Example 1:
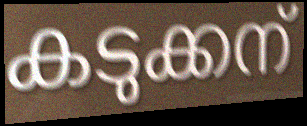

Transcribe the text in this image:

കടുക്കന്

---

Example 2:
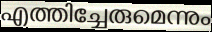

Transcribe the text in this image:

എത്തിച്ചേരുമെന്നും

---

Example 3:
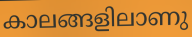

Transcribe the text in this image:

കാലങ്ങളിലാണു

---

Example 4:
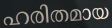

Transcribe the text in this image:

ഹരിതമായ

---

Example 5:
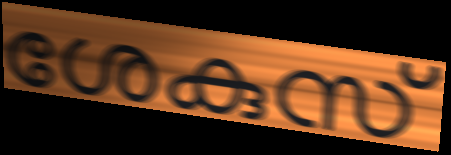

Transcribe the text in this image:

ശേകുസ്